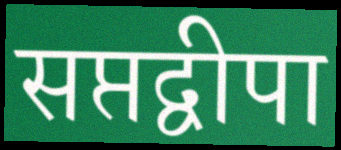
सप्तद्वीपा